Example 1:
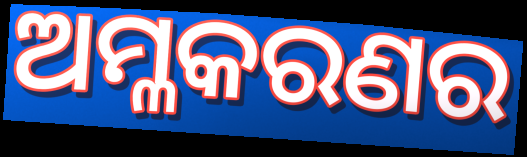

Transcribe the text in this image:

ଅମ୍ଳକରଣର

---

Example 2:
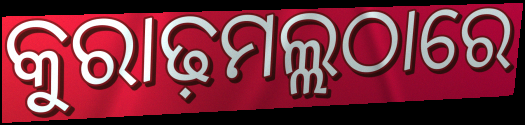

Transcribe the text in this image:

କୁରାଢ଼ମଲ୍ଲଠାରେ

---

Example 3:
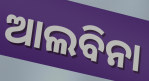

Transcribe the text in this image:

ଆଲବିନା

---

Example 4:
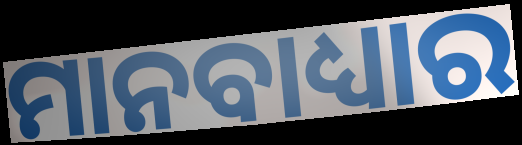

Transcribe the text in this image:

ମାନବାଧ୍ୟାର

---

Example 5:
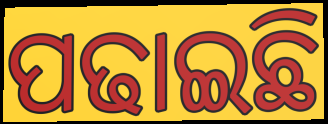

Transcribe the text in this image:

ପଢାଇଛି